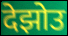
देझोउ